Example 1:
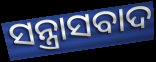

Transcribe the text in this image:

ସନ୍ତ୍ରାସବାଦ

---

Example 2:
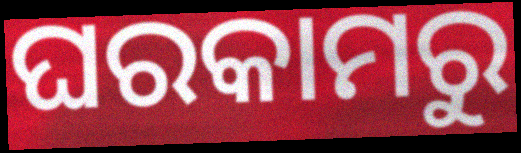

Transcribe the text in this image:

ଘରକାମରୁ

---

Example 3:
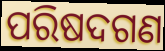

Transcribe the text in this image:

ପରିଷଦଗଣ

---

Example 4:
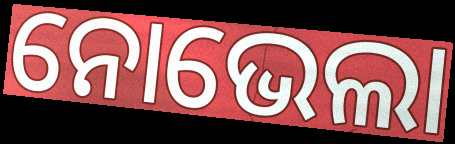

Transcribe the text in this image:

ନୋଭେଲା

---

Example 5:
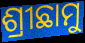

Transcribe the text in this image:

ଶ୍ରୀଛାମୁ